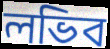
লভিব